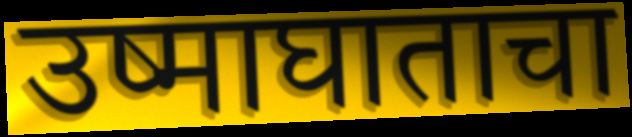
उष्माघाताचा